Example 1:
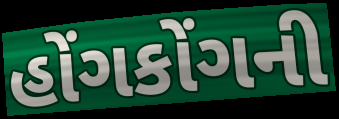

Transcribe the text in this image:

હોંગકોંગની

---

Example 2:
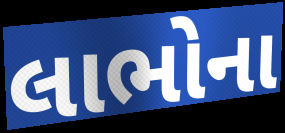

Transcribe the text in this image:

લાભોના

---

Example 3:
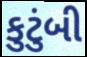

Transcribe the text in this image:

કુટુંબી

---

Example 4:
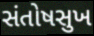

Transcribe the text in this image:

સંતોષસુખ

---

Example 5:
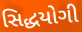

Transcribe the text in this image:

સિદ્ધયોગી